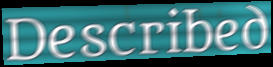
Described